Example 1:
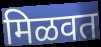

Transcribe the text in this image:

मिळवत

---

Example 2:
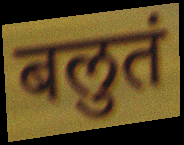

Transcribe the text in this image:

बलुतं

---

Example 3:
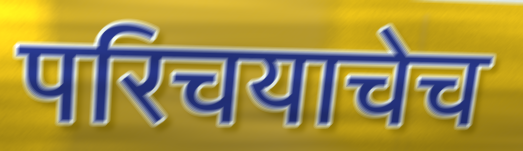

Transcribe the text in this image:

परिचयाचेच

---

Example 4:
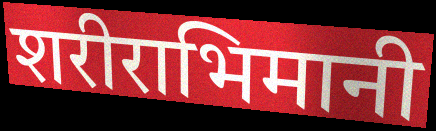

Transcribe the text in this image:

शरीराभिमानी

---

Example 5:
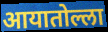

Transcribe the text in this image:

आयातोल्ला